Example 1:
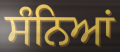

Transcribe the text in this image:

ਸੰਨਿਆਂ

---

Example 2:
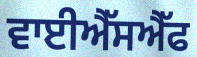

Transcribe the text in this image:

ਵਾਈਐੱਸਐੱਫ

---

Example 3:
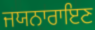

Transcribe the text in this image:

ਜਯਨਾਰਾਇਣ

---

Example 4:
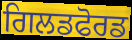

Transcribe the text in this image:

ਗਿਲਡਫੋਰਡ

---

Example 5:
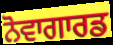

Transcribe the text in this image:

ਨੋਵਾਗਾਰਡ